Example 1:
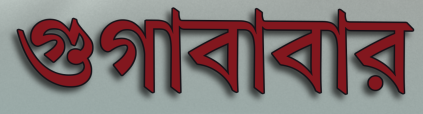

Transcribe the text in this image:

গুগাবাবার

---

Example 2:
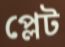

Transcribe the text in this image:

প্লেট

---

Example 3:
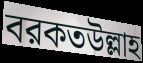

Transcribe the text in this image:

বরকতউল্লাহ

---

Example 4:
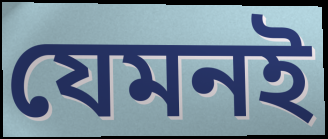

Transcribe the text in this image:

যেমনই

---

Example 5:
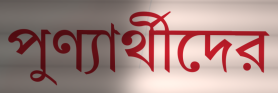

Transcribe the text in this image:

পুণ্যার্থীদের